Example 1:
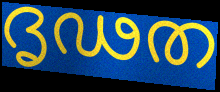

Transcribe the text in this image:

ദൃഢത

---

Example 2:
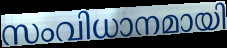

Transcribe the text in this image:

സംവിധാനമായി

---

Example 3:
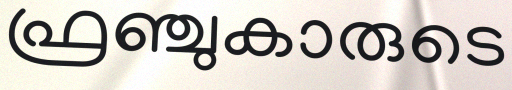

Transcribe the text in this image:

ഫ്രഞ്ചുകാരുടെ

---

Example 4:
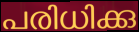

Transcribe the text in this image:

പരിധിക്കു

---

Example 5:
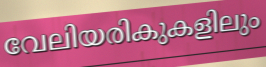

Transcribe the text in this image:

വേലിയരികുകളിലും